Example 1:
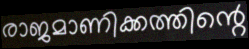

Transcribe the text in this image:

രാജമാണിക്കത്തിന്റെ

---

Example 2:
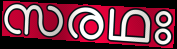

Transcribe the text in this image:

സരഥഃ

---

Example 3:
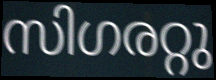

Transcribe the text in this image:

സിഗരറ്റു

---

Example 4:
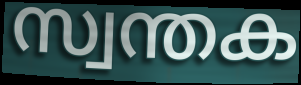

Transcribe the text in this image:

സ്വന്തക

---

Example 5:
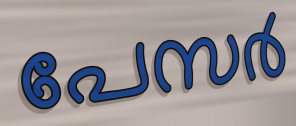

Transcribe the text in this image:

പേസർ